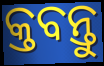
କ୍ତବନ୍ତୁ